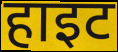
हाइट